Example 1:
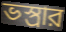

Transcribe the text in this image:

ভস্ত্রার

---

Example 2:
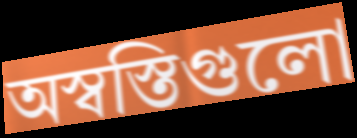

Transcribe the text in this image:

অস্বস্তিগুলো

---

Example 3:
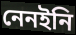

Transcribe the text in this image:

নেনইনি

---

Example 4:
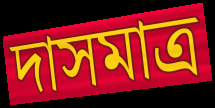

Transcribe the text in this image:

দাসমাত্র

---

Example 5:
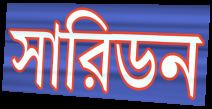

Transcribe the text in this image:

সারিডন